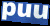
puu